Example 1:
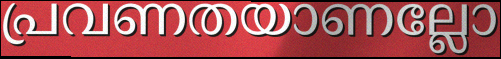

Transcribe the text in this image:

പ്രവണതയാണല്ലോ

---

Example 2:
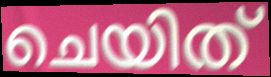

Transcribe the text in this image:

ചെയിത്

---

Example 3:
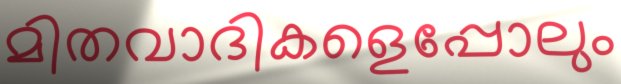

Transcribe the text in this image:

മിതവാദികളെപ്പോലും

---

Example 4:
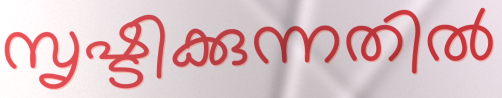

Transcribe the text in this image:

സൃഷ്ടിക്കുന്നതിൽ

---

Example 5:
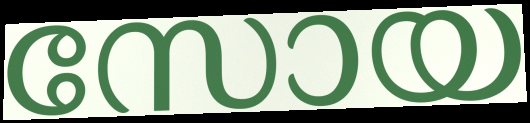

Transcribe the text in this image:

സോയ